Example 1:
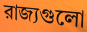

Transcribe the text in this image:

রাজ্যগুলো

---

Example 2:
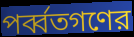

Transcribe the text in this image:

পর্ব্বতগণের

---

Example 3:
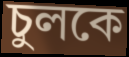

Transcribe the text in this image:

চুলকে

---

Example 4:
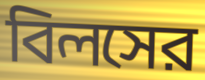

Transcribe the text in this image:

বিলসের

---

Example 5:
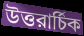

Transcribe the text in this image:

উত্তরার্চিক